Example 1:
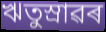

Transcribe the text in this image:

ঋতুস্ৰাৱৰ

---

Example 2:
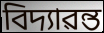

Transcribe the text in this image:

বিদ্যাৱন্ত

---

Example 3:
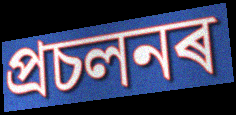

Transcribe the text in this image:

প্ৰচলনৰ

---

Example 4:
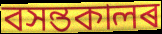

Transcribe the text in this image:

বসন্তকালৰ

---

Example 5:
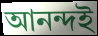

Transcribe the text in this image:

আনন্দই